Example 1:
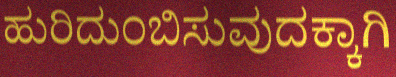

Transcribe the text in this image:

ಹುರಿದುಂಬಿಸುವುದಕ್ಕಾಗಿ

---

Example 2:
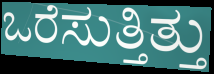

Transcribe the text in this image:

ಒರೆಸುತ್ತಿತ್ತು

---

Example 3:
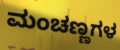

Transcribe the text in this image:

ಮಂಚಣ್ಣಗಳ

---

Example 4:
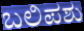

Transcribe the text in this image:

ಬಲಿಪಶು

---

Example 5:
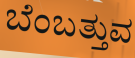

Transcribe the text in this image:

ಬೆಂಬತ್ತುವ